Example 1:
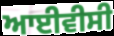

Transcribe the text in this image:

ਆਈਵੀਸੀ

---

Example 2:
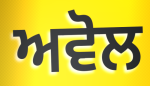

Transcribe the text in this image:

ਅਵੋਲ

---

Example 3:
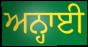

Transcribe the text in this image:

ਅਨ੍ਹਾਈ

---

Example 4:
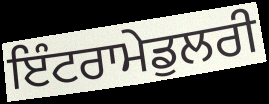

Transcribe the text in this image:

ਇੰਟਰਾਮੇਡੁਲਰੀ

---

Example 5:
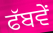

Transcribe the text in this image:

ਫੱਬਵੇਂ